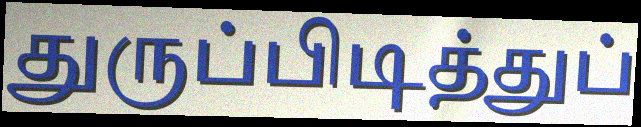
துருப்பிடித்துப்